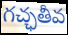
గచ్ఛతీవ